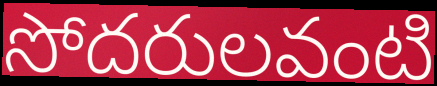
సోదరులవంటి